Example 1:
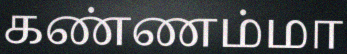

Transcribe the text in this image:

கண்ணம்மா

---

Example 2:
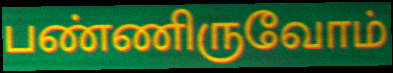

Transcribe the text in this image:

பண்ணிருவோம்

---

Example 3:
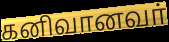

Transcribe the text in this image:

கனிவானவர்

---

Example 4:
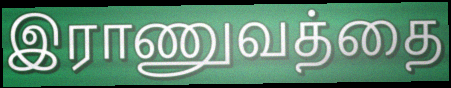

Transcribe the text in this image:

இராணுவத்தை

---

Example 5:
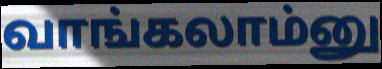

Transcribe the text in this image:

வாங்கலாம்னு